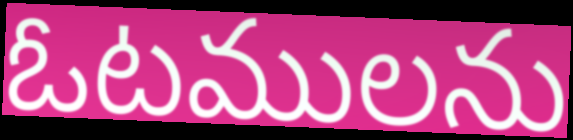
ఓటములను